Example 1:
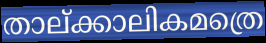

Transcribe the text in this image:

താല്ക്കാലികമത്രെ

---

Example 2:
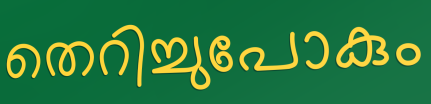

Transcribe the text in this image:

തെറിച്ചുപോകും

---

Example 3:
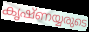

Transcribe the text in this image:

കൃഷ്ണയ്യരുടെ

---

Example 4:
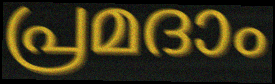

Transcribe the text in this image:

പ്രമദാം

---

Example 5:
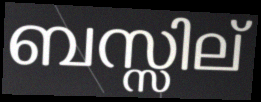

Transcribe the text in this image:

ബസ്സില്